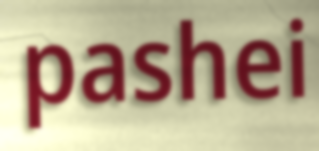
pashei